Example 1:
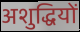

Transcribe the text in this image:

अशुद्धियों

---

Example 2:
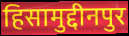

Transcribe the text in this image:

हिसामुद्दीनपुर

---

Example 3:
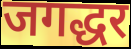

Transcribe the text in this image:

जगद्धर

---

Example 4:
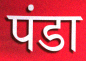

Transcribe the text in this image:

पंडा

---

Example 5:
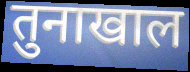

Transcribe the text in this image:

तुनाखाल